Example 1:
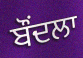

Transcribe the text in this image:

ਬੌਂਦਲਾ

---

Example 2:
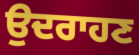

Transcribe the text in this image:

ਉਦਰਾਹਣ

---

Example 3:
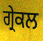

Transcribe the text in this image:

ਗ੍ਰੇਕਲ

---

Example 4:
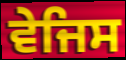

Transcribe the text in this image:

ਵੇਜਿਸ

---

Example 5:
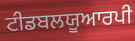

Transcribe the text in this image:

ਟੀਡਬਲਯੂਆਰਪੀ